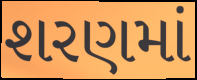
શરણમાં